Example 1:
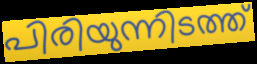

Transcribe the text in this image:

പിരിയുന്നിടത്ത്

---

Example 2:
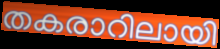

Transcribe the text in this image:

തകരാറിലായി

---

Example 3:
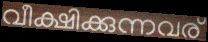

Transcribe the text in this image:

വീക്ഷിക്കുന്നവര്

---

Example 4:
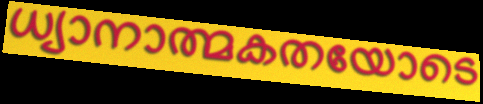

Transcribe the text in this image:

ധ്യാനാത്മകതയോടെ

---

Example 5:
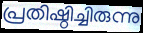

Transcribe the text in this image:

പ്രതിഷ്ഠിച്ചിരുന്നു